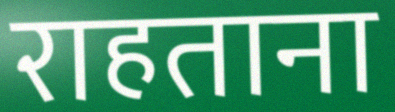
राहताना